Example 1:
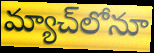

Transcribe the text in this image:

మ్యాచ్‌లోనూ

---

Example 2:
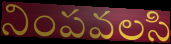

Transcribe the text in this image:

నింపవలసి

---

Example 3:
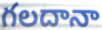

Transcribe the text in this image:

గలదానా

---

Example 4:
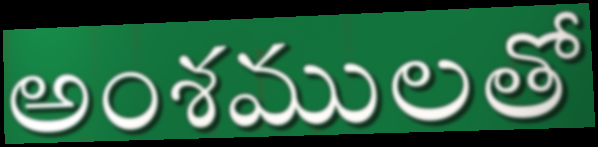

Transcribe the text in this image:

అంశములతో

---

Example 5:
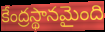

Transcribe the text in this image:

కేంద్రస్థానమైంది